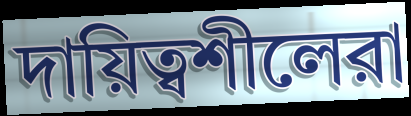
দায়িত্বশীলেরা